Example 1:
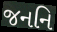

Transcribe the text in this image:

જનનિ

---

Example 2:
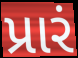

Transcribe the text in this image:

પ્રારં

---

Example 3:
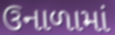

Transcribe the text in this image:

ઉનાળામાં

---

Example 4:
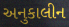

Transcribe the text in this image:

અનુકાલીન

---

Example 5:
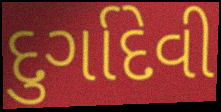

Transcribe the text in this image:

દુર્ગાદેવી